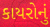
કાયરોનું